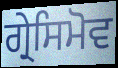
ਗ੍ਰੇਸਿਮੋਵ